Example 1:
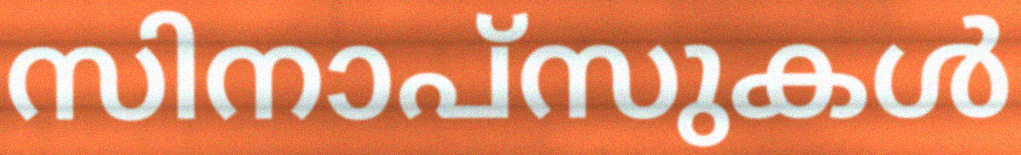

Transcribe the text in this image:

സിനാപ്സുകൾ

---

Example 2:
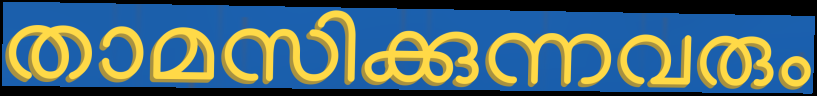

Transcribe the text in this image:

താമസിക്കുന്നവരും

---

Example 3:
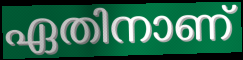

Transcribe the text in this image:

ഏതിനാണ്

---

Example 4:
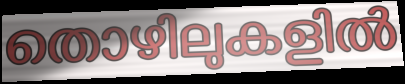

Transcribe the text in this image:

തൊഴിലുകളിൽ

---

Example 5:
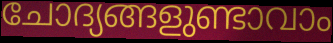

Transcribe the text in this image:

ചോദ്യങ്ങളുണ്ടാവാം